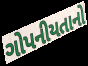
ગોપનીયતાનો